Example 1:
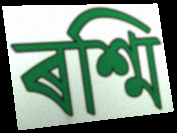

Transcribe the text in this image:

ৰশ্মি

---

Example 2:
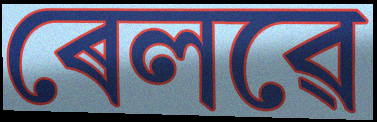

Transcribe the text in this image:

ৰেলৱে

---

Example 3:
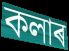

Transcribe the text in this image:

কলাৰ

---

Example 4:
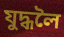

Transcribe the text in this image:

যুদ্ধলৈ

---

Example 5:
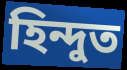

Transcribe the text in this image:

হিন্দুত